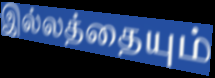
இல்லத்தையும்